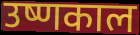
उष्णकाल